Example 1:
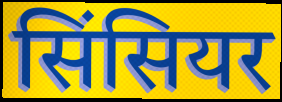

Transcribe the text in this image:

सिंसियर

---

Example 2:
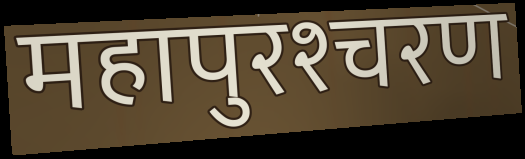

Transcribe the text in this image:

महापुरश्चरण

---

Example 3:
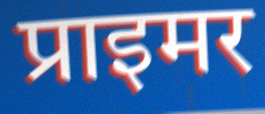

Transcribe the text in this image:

प्राइमर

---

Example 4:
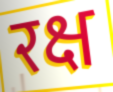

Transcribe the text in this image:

रक्ष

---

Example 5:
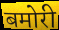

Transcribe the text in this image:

बमोरी